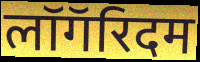
लॉगॅरिदम